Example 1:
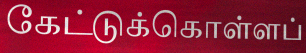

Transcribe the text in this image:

கேட்டுக்கொள்ளப்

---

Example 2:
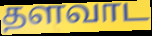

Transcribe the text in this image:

தளவாட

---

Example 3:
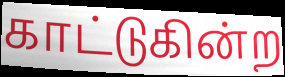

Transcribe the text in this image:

காட்டுகின்ற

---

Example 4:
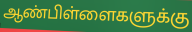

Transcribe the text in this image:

ஆண்பிள்ளைகளுக்கு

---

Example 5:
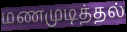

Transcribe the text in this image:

மணமுடித்தல்